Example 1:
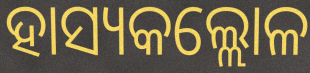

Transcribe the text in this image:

ହାସ୍ୟକଲ୍ଲୋଳ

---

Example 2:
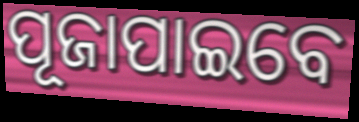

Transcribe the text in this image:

ପୂଜାପାଇବେ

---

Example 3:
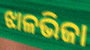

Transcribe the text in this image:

ଝାଳଭିଜା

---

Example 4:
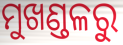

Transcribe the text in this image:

ମୁଖଣ୍ଡଳରୁ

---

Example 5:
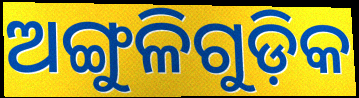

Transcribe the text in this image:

ଅଙ୍ଗୁଳିଗୁଡ଼ିକ